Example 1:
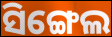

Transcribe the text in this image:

ସିଙ୍ଗେଲ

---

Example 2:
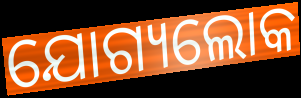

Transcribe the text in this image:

ଯୋଗ୍ୟଲୋକ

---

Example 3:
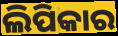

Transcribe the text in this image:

ଲିପିକାର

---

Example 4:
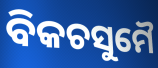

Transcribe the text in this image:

ବିକଚସୁମୈ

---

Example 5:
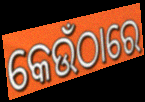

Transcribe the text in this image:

କେଉଁଠାରେ